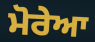
ਮੋਰੇਆ